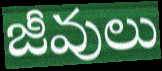
జీవులు